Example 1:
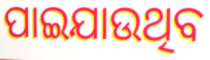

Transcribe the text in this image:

ପାଇଯାଉଥିବ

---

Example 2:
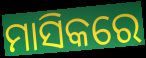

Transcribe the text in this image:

ମାସିକରେ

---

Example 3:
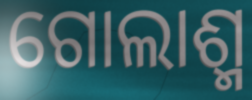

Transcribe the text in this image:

ଗୋଲାଶ୍ମ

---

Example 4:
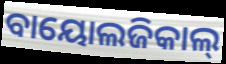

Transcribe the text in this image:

ବାୟୋଲଜିକାଲ୍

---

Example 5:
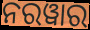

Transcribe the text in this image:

ନରୱାର